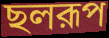
ছলরূপ